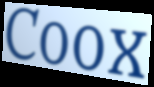
Coox